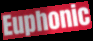
Euphonic